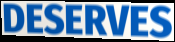
DESERVES